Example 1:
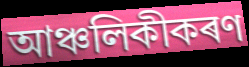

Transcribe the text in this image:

আঞ্চলিকীকৰণ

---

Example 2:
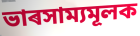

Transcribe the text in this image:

ভাৰসাম্যমূলক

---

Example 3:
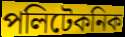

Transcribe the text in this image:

পলিটেকনিক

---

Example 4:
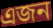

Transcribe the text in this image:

এজন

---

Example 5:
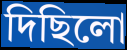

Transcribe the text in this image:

দিছিলো